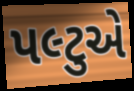
પલ્ટુએ